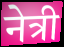
नेत्री